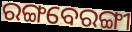
ରଙ୍ଗବେରଙ୍ଗୀ